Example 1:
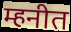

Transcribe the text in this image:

म्हनीत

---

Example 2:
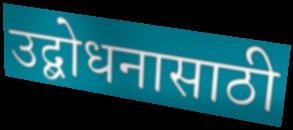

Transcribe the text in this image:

उद्बोधनासाठी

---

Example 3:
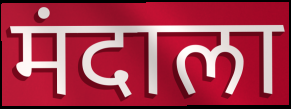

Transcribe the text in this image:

मंदाला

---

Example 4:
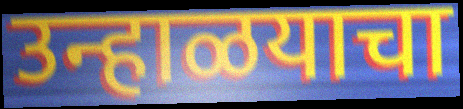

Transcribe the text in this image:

उन्हाळयाचा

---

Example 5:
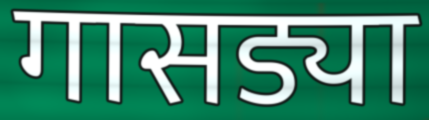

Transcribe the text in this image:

गासड्या